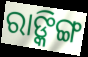
ରାଙ୍କିଙ୍ଗ